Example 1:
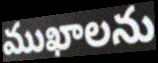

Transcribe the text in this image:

ముఖాలను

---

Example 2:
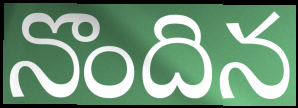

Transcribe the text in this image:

నొందిన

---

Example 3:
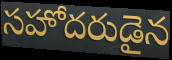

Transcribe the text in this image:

సహోదరుడైన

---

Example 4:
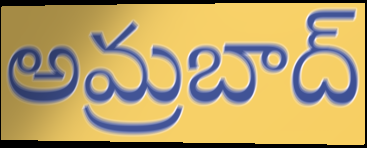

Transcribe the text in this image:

అమ్రబాద్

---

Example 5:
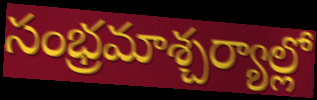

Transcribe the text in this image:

సంభ్రమాశ్చర్యాల్లో